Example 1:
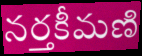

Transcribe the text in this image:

నర్తకీమణి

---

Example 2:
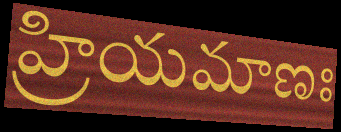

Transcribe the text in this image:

హ్రియమాణః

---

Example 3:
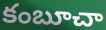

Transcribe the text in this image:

కంబూచా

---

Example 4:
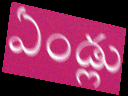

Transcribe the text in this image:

ఏండ్లు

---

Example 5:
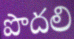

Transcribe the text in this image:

పొదలి